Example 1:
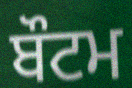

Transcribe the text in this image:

ਬੌਟਮ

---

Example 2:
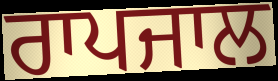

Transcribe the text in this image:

ਰਾਪਜਾਲ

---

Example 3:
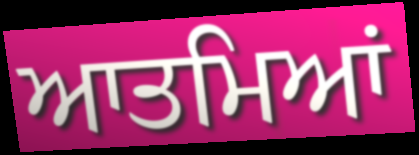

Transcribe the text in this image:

ਆਤਮਿਆਂ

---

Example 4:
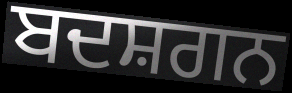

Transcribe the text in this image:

ਬਦਸ਼ਗਨ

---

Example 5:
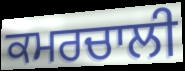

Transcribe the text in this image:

ਕਮਰਚਾਲੀ